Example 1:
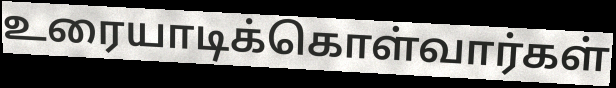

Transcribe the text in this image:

உரையாடிக்கொள்வார்கள்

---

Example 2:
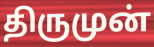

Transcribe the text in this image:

திருமுன்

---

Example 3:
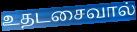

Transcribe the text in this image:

உதடசைவால்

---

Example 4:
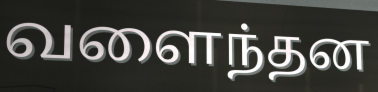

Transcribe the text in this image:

வளைந்தன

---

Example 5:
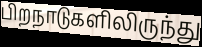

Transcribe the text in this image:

பிறநாடுகளிலிருந்து